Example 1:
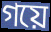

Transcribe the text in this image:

গয়ে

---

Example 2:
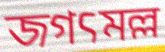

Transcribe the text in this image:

জগৎমল্ল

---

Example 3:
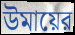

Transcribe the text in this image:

উমায়ের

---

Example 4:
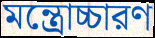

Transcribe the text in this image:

মন্ত্রোচ্চারণ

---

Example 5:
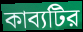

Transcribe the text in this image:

কাব্যটির